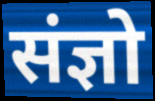
संज्ञो